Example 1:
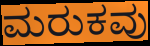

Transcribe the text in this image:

ಮರುಕವು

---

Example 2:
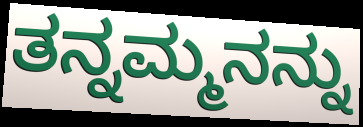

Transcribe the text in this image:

ತನ್ನಮ್ಮನನ್ನು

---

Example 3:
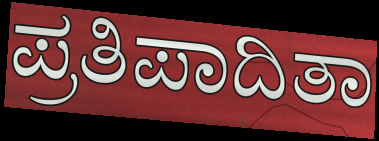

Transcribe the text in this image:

ಪ್ರತಿಪಾದಿತಾ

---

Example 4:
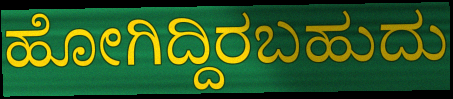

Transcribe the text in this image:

ಹೋಗಿದ್ದಿರಬಹುದು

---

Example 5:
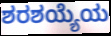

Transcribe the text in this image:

ಶರಶಯ್ಯೆಯ